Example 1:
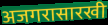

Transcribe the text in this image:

अजगरासारखी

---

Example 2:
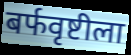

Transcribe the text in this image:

बर्फवृष्टीला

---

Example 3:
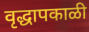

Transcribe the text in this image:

वृद्धापकाळी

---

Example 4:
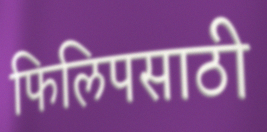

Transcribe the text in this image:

फिलिपसाठी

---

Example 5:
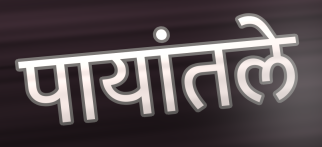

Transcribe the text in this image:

पायांतले